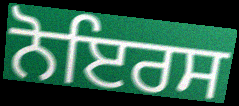
ਨੋਇਰਸ